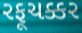
રફૂચક્કર